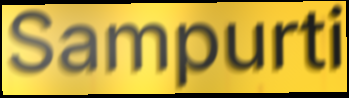
Sampurti